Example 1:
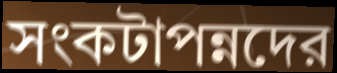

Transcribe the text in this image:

সংকটাপন্নদের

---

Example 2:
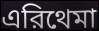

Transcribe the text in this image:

এরিথেমা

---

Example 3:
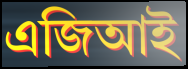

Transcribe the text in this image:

এজিআই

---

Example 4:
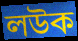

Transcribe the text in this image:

লউক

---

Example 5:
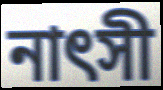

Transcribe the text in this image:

নাৎসী